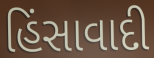
હિંસાવાદી